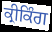
ਕ੍ਰੀਕਿੰਗ